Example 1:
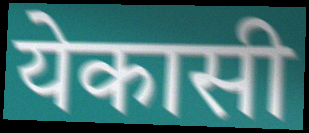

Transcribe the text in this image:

येकासी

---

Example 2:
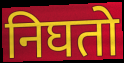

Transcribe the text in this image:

निघतो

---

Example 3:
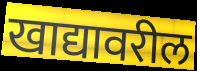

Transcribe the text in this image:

खाद्यावरील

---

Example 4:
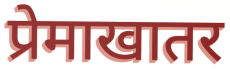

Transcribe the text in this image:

प्रेमाखातर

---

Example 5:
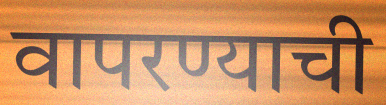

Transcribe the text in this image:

वापरण्याची